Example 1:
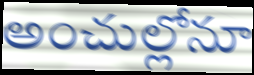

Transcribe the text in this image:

అంచుల్లోనూ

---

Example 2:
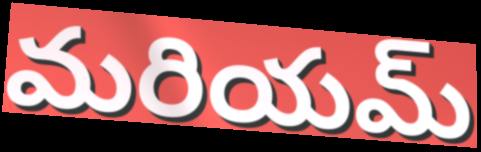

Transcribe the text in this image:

మరియమ్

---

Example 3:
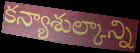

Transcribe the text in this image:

కన్యాశుల్కాన్ని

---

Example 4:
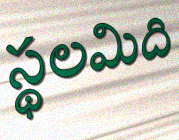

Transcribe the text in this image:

స్థలమిది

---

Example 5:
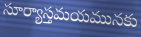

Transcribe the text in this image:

సూర్యాస్తమయమునకు